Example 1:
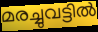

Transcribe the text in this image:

മരച്ചുവട്ടിൽ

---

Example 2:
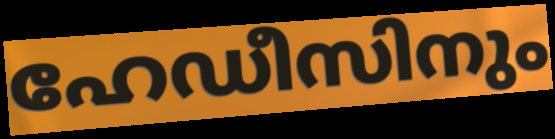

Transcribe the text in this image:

ഹേഡീസിനും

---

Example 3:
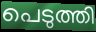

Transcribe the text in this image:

പെടുത്തി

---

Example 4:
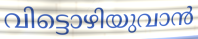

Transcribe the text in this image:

വിട്ടൊഴിയുവാൻ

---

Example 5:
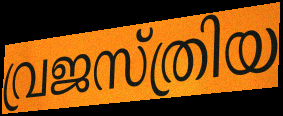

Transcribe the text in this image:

വ്രജസ്ത്രിയ